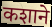
कशाने